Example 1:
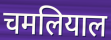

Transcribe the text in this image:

चमलियाल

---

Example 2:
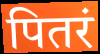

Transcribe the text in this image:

पितरं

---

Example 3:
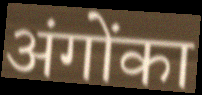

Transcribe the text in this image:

अंगोंका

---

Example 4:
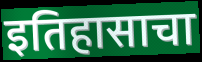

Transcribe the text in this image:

इतिहासाचा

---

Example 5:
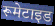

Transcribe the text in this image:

रूमेटाइड